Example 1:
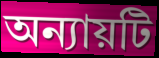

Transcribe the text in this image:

অন্যায়টি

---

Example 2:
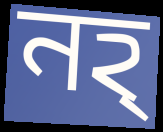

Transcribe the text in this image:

নহ্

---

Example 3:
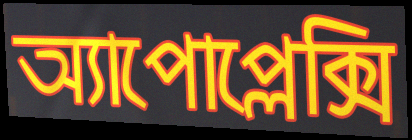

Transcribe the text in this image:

অ্যাপোপ্লেক্সি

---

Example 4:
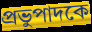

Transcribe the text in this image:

প্রভুপাদকে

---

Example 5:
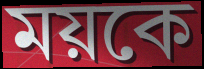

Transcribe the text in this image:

ময়কে